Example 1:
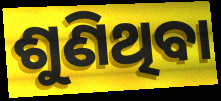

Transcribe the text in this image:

ଶୁଣିଥିବା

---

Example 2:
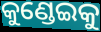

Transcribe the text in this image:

କୁଣ୍ଡେଇକୁ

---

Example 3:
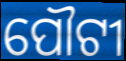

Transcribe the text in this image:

ପୌଟୀ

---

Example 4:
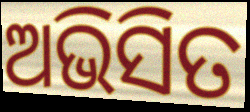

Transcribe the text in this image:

ଅଭିସିତ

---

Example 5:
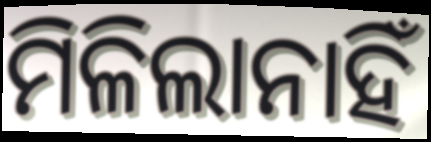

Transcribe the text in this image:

ମିଳିଲାନାହିଁ